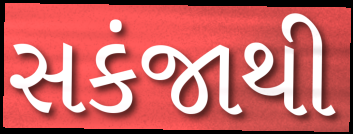
સકંજાથી